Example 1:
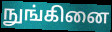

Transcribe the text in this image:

நுங்கினை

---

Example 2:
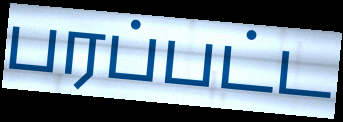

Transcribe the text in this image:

பரப்பட்ட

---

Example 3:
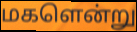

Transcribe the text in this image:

மகளென்று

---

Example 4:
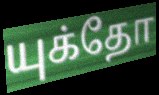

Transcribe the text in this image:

யுக்தோ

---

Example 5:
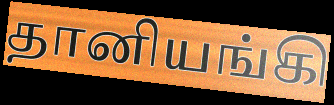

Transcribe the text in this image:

தானியங்கி